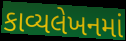
કાવ્યલેખનમાં